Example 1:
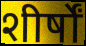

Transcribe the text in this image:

शीर्षों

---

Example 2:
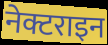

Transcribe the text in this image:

नेक्टराइन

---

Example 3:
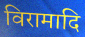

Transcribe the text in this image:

विरामादि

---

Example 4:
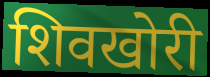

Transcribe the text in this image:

शिवखोरी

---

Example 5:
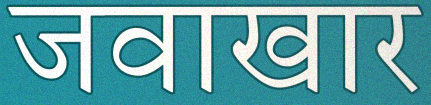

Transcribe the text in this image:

जवाखार